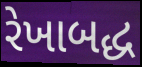
રેખાબદ્ધ